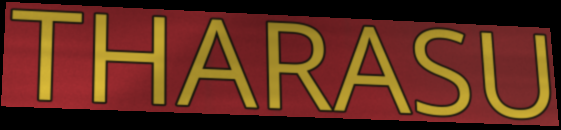
THARASU